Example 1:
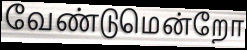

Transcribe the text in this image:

வேண்டுமென்றோ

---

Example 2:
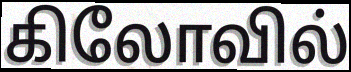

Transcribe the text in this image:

கிலோவில்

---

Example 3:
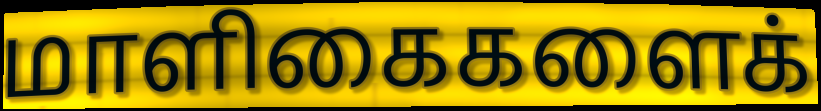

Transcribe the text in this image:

மாளிகைகளைக்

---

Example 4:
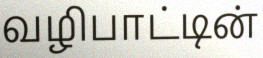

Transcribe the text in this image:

வழிபாட்டின்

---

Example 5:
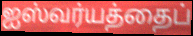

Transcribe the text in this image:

ஐஸ்வர்யத்தைப்